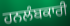
ਹਨਲੰਬਕਾਰੀ